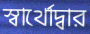
স্বার্থোদ্বার